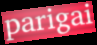
parigai